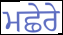
ਮਛੇਰੇ